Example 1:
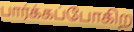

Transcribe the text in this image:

பார்க்கப்போகிற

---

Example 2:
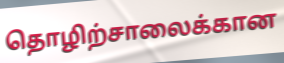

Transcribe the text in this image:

தொழிற்சாலைக்கான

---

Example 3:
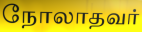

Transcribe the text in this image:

நோலாதவர்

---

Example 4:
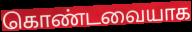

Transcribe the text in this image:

கொண்டவையாக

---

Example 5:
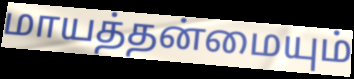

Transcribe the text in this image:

மாயத்தன்மையும்